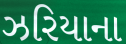
ઝરિયાના